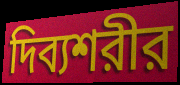
দিব্যশরীর